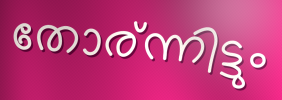
തോര്ന്നിട്ടും